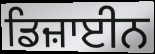
ਡਿਜ਼ਾਈਨ